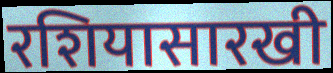
रशियासारखी